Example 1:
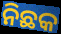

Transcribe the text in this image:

ନିଛକ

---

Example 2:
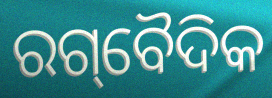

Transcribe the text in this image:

ରଗ୍‌ବୈଦିକ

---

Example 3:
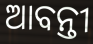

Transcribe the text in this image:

ଆବନ୍ତୀ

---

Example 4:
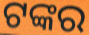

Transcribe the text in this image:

ଟଙ୍କର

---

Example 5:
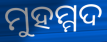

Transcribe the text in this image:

ମୁହମ୍ମଦ